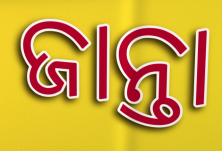
ଜାନ୍ତା